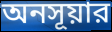
অনসূয়ার